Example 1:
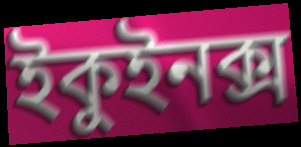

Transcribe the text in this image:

ইকুইনক্স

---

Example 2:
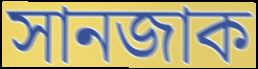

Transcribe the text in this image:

সানজাক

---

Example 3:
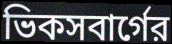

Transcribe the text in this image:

ভিকসবার্গের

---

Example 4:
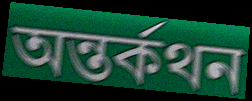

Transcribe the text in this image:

অন্তর্কথন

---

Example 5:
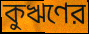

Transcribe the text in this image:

কুঋণের